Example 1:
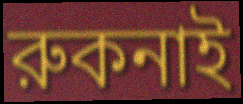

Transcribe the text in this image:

রুকনাই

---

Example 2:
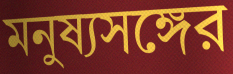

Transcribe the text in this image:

মনুষ্যসঙ্গের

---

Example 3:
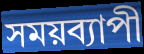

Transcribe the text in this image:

সময়ব্যাপী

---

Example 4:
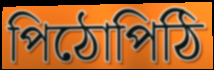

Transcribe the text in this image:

পিঠোপিঠি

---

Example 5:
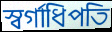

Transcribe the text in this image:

স্বর্গাধিপতি